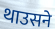
थाउसने